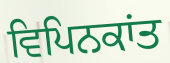
ਵਿਪਿਨਕਾਂਤ